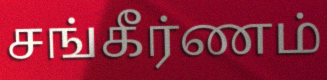
சங்கீர்ணம்